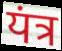
यंत्र